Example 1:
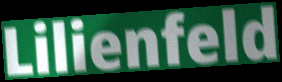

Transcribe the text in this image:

Lilienfeld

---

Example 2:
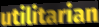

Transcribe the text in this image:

utilitarian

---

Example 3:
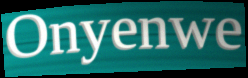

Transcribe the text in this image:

Onyenwe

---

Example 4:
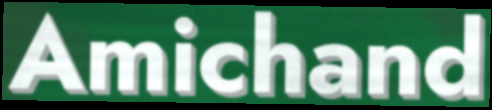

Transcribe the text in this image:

Amichand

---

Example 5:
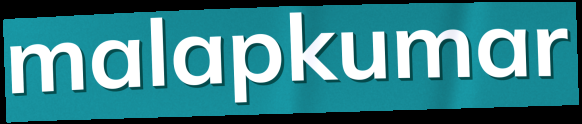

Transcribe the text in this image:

malapkumar